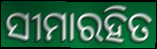
ସୀମାରହିତ